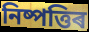
নিষ্পত্তিৰ